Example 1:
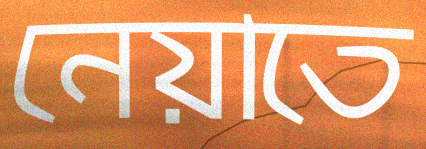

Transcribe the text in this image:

নেয়াতে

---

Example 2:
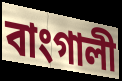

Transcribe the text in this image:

বাংগালী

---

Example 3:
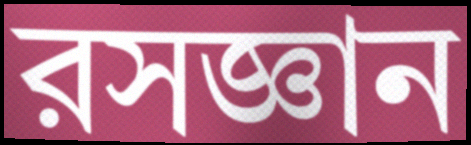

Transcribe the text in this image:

রসজ্ঞান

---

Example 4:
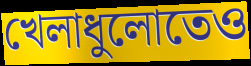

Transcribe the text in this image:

খেলাধুলোতেও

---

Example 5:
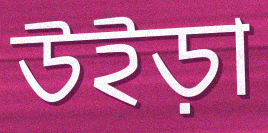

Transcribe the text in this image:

উইড়া